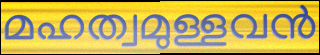
മഹത്വമുള്ളവൻ